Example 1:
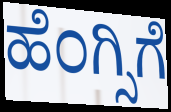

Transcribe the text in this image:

ಹೆಂಗ್ಸಿಗೆ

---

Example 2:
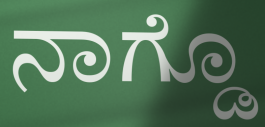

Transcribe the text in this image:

ನಾಗ್ಡೊ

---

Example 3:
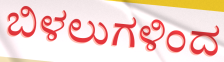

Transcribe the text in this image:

ಬಿಳಲುಗಳಿಂದ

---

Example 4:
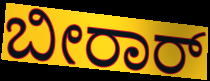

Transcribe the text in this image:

ಬೀರಾರ್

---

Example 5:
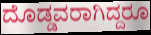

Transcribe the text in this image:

ದೊಡ್ಡವರಾಗಿದ್ದರೂ